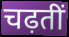
चढ़तीं